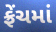
ફ્રેંચમાં